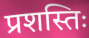
प्रशस्तिः